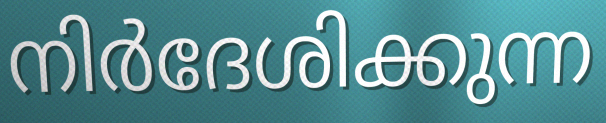
നിർദേശിക്കുന്ന